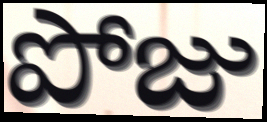
పోజు